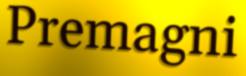
Premagni